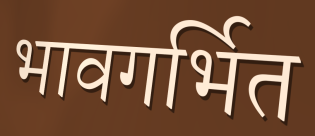
भावगर्भित